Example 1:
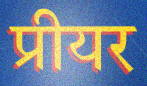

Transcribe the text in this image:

प्रीयर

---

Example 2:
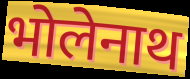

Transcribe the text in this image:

भोलेनाथ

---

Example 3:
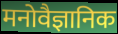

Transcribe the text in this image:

मनोवैज्ञानिक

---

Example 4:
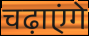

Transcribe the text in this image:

चढ़ाएंगे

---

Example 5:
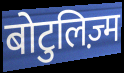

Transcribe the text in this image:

बोटुलिज़्म